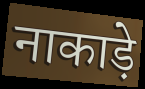
नाकाड़े